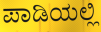
ಪಾಡಿಯಲ್ಲಿ